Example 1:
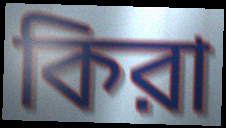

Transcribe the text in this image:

কিরা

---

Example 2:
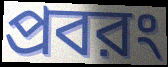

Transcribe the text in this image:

প্রবরং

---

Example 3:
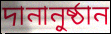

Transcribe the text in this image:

দানানুষ্ঠান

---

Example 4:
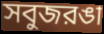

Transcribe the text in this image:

সবুজরঙা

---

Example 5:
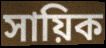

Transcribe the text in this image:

সায়িক